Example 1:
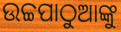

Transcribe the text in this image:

ଉଚ୍ଚପାଠୁଆଙ୍କୁ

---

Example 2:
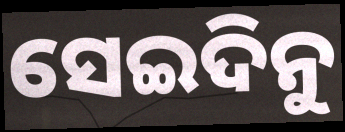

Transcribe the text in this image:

ସେଇଦିନୁ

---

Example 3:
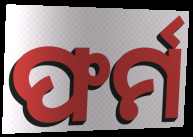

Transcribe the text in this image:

ଫର୍ମ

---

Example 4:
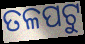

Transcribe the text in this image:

ତଳପଟୁ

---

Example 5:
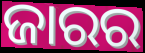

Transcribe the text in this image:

ଜାରର